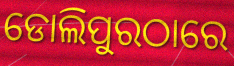
ଡୋଲିପୁରଠାରେ